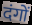
दंगों